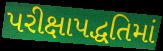
પરીક્ષાપદ્ધતિમાં